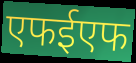
एफईएफ